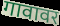
गावावर